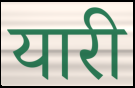
यारी